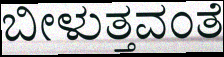
ಬೀಳುತ್ತವಂತೆ